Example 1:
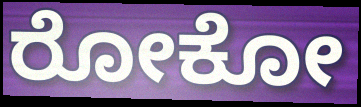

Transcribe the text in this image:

ರೋಕೋ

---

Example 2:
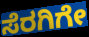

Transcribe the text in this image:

ಸೆರಗಿಗೇ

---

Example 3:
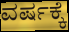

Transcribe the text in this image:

ವರ್ಷಕ್ಕೆ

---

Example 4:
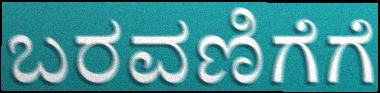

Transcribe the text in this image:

ಬರವಣಿಗೆಗೆ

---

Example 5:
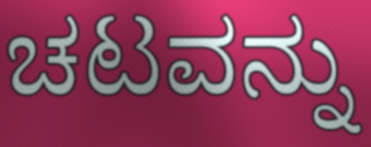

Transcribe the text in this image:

ಚಟವನ್ನು